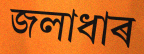
জলাধাৰ